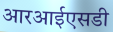
आरआईएसडी